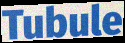
Tubule